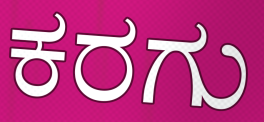
ಕರಗು